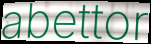
abettor